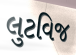
લુટવિજ